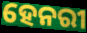
ହେନରୀ